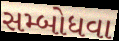
સમ્બોધવા